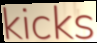
kicks